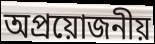
অপ্ৰয়োজনীয়